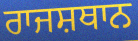
ਰਾਜਸ਼ਥਾਨ